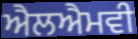
ਐਲਐਮਵੀ